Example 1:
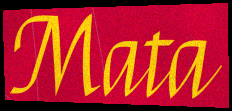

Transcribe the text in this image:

Mata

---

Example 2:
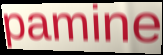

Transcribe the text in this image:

pamine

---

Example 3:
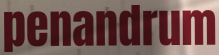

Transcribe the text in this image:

penandrum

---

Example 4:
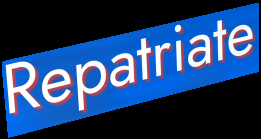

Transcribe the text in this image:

Repatriate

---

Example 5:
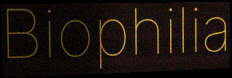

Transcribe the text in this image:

Biophilia